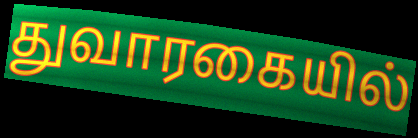
துவாரகையில்